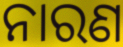
ନାରଣ